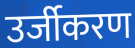
उर्जीकरण